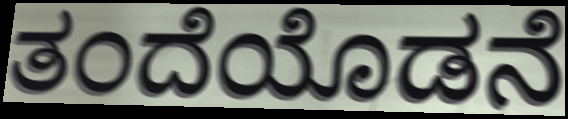
ತಂದೆಯೊಡನೆ